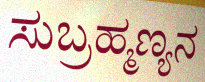
ಸುಬ್ರಹ್ಮಣ್ಯನ